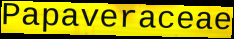
Papaveraceae